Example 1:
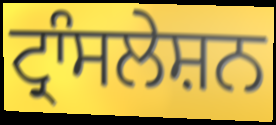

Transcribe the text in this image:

ਟ੍ਰਾੰਸਲੇਸ਼ਨ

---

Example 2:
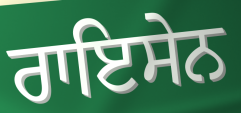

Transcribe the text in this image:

ਰਾਇਸੇਨ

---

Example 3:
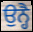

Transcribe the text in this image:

ਉਨ੍ਹੈ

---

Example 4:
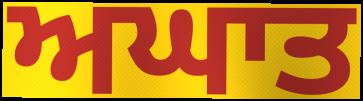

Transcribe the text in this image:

ਅਘਾਤ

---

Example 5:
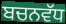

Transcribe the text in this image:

ਬਚਨਵੱਧ